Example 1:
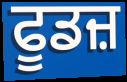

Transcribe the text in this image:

ਫੂਡਜ਼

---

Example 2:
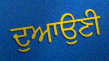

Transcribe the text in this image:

ਦੁਆਉਣੀ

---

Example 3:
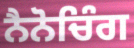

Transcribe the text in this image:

ਨੈਨੋਚਿੰਗ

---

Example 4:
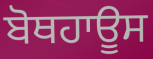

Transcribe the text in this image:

ਬੋਥਹਾਊਸ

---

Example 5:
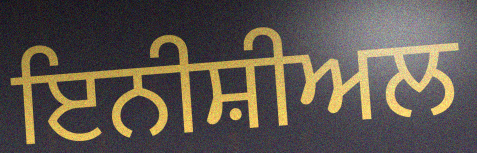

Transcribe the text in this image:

ਇਨੀਸ਼ੀਅਲ